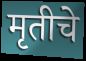
मृतीचे